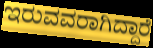
ಇರುವವರಾಗಿದ್ದಾರೆ